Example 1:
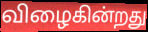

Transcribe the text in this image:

விழைகின்றது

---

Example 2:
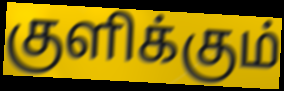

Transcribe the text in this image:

குளிக்கும்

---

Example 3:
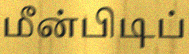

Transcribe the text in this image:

மீன்பிடிப்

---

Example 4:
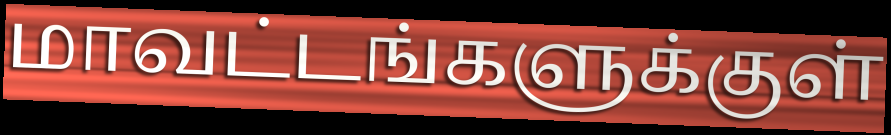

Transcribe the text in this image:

மாவட்டங்களுக்குள்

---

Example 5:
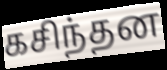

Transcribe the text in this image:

கசிந்தன